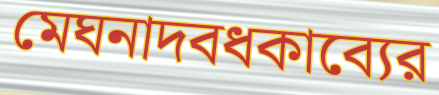
মেঘনাদবধকাব্যের